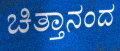
ಚಿತ್ತಾನಂದ